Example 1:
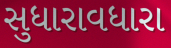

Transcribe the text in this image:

સુધારાવધારા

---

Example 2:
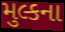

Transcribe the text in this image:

મુલ્કના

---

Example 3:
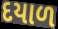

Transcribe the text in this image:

દયાળ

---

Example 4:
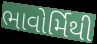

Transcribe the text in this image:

ભાવોર્મિથી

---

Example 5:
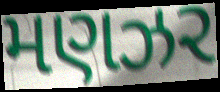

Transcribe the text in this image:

મણઝર